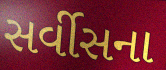
સર્વીસના